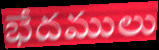
భేదములు